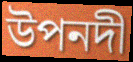
উপনদী